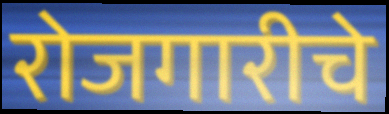
रोजगारीचे